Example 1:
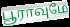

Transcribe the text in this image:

பூராவுமே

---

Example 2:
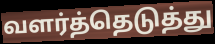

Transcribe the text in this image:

வளர்த்தெடுத்து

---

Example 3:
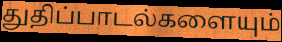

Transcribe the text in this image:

துதிப்பாடல்களையும்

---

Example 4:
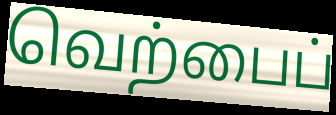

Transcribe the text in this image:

வெற்பைப்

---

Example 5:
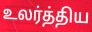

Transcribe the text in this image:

உலர்த்திய